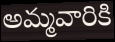
అమ్మవారికి